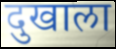
दुखाला